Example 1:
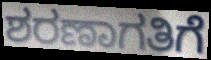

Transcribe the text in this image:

ಶರಣಾಗತಿಗೆ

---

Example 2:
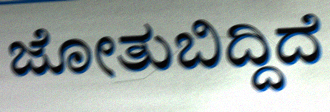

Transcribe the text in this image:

ಜೋತುಬಿದ್ದಿದೆ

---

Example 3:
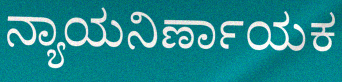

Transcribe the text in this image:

ನ್ಯಾಯನಿರ್ಣಾಯಕ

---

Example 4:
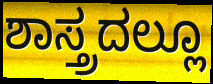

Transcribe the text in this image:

ಶಾಸ್ತ್ರದಲ್ಲೂ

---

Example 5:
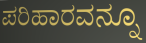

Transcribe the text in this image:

ಪರಿಹಾರವನ್ನೂ